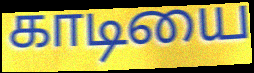
காடியை